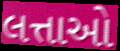
લત્તાઓ